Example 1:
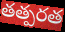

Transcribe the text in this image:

తత్పరత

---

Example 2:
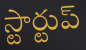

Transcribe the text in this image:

స్టార్టుప్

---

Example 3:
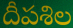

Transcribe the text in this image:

దీపశిల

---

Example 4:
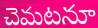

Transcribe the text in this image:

చెమటనూ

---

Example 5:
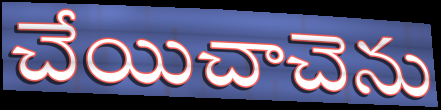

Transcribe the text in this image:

చేయిచాచెను